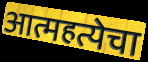
आत्महत्येचा